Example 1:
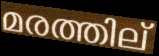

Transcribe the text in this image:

മരത്തില്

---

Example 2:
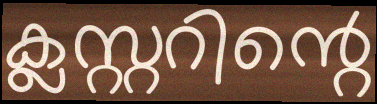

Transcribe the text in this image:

ക്ലസ്റ്ററിന്റെ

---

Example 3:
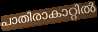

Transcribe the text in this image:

പാതിരാകാറ്റിൽ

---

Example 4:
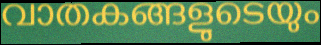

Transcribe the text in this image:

വാതകങ്ങളുടെയും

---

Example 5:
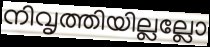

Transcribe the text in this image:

നിവൃത്തിയില്ലല്ലോ